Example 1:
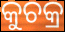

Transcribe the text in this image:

କୁଚକ୍ର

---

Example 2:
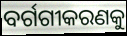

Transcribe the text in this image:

ବର୍ଗଗୀକରଣକୁ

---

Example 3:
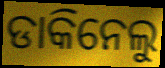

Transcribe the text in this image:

ଡାକିନେଲୁ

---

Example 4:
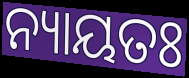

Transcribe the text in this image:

ନ୍ୟାୟତଃ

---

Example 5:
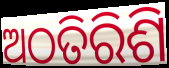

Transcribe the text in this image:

ଅଠତିରିଶି